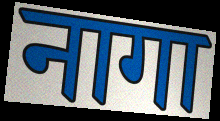
नागा